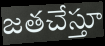
జతచేస్తూ